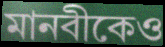
মানবীকেও